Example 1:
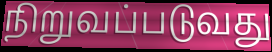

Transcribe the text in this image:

நிறுவப்படுவது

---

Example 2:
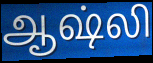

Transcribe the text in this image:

ஆஷ்லி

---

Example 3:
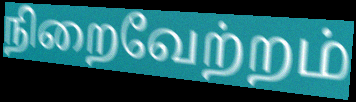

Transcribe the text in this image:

நிறைவேற்றம்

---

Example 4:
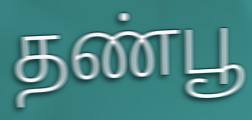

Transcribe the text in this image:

தண்பூ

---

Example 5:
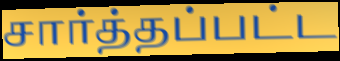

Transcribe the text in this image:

சார்த்தப்பட்ட